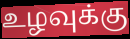
உழவுக்கு